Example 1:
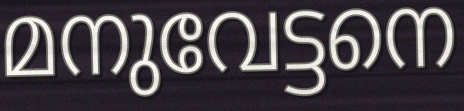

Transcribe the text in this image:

മനുവേട്ടനെ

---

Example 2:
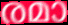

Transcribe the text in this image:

രമാ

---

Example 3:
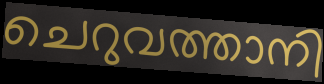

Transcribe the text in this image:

ചെറുവത്താനി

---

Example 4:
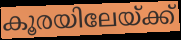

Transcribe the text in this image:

കൂരയിലേയ്ക്ക്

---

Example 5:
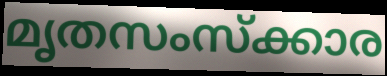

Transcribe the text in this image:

മൃതസംസ്ക്കാര